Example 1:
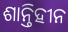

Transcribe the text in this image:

ଶାନ୍ତିହୀନ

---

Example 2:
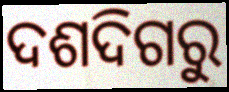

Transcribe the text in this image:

ଦଶଦିଗରୁ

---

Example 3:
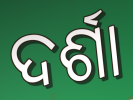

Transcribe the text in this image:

ଦର୍ଶା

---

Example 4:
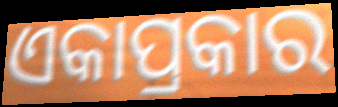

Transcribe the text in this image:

ଏକାପ୍ରକାର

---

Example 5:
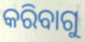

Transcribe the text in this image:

କରିବାଗୁ